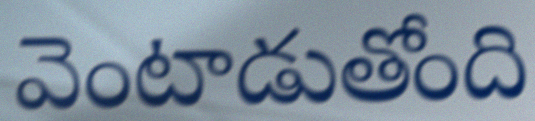
వెంటాడుతోంది